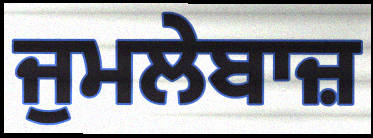
ਜੁਮਲੇਬਾਜ਼